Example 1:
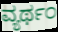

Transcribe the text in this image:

ವ್ಯರ್ಥಂ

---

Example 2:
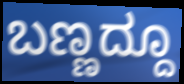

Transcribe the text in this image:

ಬಣ್ಣದ್ದೂ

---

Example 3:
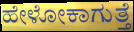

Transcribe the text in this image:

ಹೇಳೋಕಾಗುತ್ತೆ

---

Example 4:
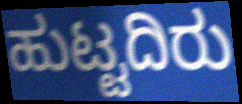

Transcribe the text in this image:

ಹುಟ್ಟದಿರು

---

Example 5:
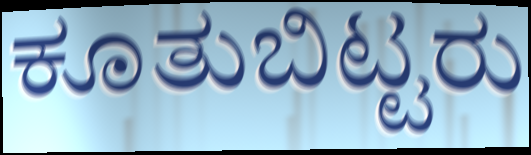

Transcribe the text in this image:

ಕೂತುಬಿಟ್ಟರು